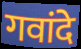
गवांदे